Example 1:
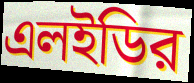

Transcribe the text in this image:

এলইডির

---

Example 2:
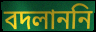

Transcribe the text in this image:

বদলাননি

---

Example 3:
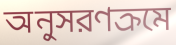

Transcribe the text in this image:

অনুসরণক্রমে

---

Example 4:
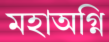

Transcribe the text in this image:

মহাঅগ্নি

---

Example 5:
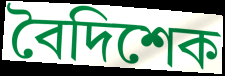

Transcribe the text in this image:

বৈদিশেক